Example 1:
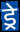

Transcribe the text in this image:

ड्रे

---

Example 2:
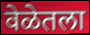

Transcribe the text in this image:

वेळेतला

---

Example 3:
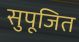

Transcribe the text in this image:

सुपूजित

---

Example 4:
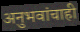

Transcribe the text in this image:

अनुभवांचाही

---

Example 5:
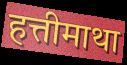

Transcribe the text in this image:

हत्तीमाथा